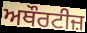
ਅਥੌਰਟੀਜ਼